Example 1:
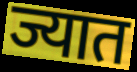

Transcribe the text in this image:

ज्यात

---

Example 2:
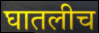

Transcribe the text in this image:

घातलीच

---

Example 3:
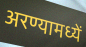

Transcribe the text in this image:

अरण्यामध्यें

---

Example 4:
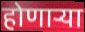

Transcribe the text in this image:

होणाऱ्या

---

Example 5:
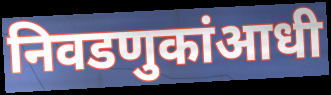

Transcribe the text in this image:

निवडणुकांआधी